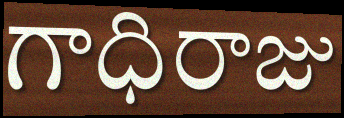
గాధిరాజు